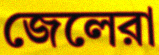
জেলেরা